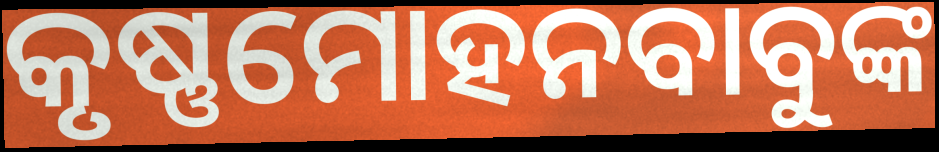
କୃଷ୍ଣମୋହନବାବୁଙ୍କ